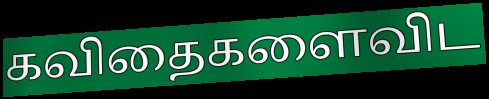
கவிதைகளைவிட